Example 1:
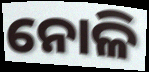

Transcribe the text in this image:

ନୋଳି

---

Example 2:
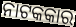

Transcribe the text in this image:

ନାଟକକାର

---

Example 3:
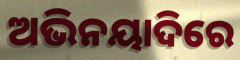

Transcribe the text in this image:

ଅଭିନୟାଦିରେ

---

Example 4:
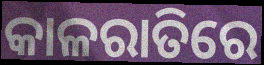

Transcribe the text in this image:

କାଳରାତିରେ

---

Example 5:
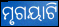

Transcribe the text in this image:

ମୃଗୟାଟି